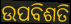
ଉପବିଶତି